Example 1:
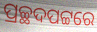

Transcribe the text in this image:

ପ୍ରଚ୍ଛଦପଟ୍ଟରେ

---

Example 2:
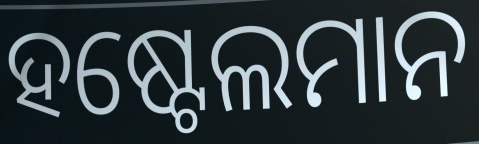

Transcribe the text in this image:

ହଷ୍ଟେଲମାନ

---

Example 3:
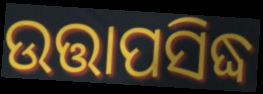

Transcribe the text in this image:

ଉତ୍ତାପସିଦ୍ଧ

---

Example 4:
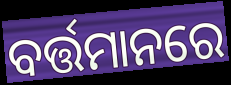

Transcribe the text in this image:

ବର୍ତ୍ତମାନରେ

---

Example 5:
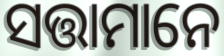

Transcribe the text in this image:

ସତ୍ତାମାନେ